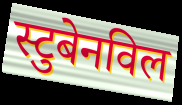
स्टुबेनविल